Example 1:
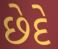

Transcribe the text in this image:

છેદે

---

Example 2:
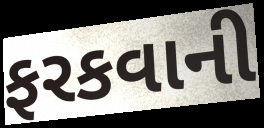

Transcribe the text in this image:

ફરકવાની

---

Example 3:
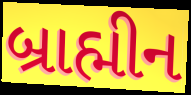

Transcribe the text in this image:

બ્રાહ્મીન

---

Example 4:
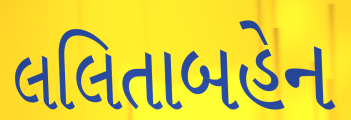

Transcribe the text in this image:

લલિતાબહેન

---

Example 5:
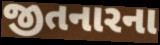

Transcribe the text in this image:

જીતનારના